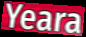
Yeara